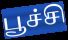
பூச்சி